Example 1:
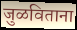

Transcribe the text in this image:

जुळविताना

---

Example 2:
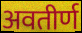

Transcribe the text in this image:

अवतीर्ण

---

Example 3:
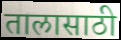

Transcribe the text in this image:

तालासाठी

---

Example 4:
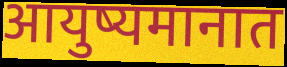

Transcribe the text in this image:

आयुष्यमानात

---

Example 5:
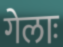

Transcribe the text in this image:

गेलाः